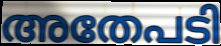
അതേപടി